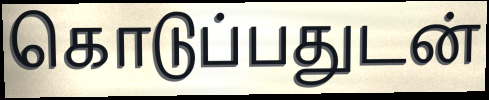
கொடுப்பதுடன்